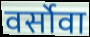
वर्सोवा